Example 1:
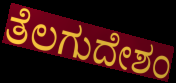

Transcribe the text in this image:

ತೆಲಗುದೇಶಂ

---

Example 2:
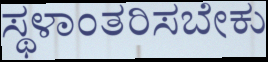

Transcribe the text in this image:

ಸ್ಥಳಾಂತರಿಸಬೇಕು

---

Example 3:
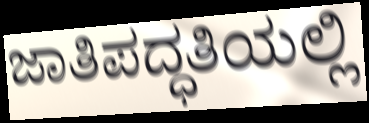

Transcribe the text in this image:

ಜಾತಿಪದ್ಧತಿಯಲ್ಲಿ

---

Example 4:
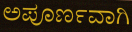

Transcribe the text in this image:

ಅಪೂರ್ಣವಾಗಿ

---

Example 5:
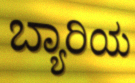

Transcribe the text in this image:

ಬ್ಯಾರಿಯ